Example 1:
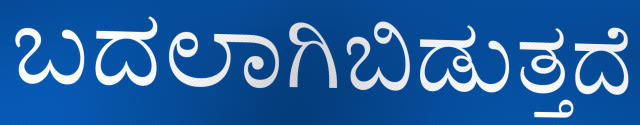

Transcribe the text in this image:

ಬದಲಾಗಿಬಿಡುತ್ತದೆ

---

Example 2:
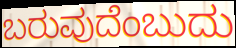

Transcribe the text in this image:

ಬರುವುದೆಂಬುದು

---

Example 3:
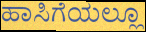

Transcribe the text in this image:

ಹಾಸಿಗೆಯಲ್ಲೂ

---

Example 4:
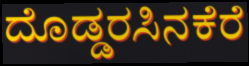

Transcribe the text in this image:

ದೊಡ್ಡರಸಿನಕೆರೆ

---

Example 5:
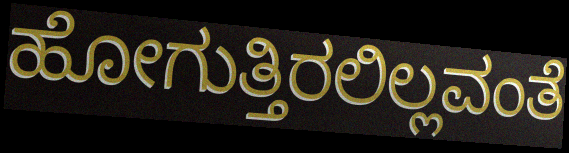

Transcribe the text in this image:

ಹೋಗುತ್ತಿರಲಿಲ್ಲವಂತೆ